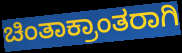
ಚಿಂತಾಕ್ರಾಂತರಾಗಿ